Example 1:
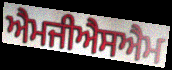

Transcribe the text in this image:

ਐਮਜੀਐਸਐਮ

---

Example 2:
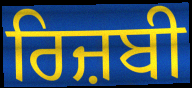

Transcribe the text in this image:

ਰਿਜ਼ਬੀ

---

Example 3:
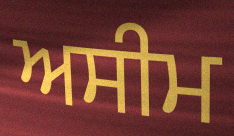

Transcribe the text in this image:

ਅਸੀਮ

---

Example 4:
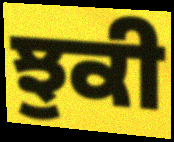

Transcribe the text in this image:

ਝੁਕੀ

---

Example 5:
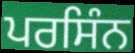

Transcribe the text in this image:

ਪਰਸਿੰਨ